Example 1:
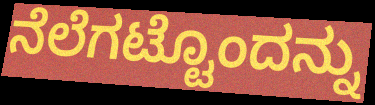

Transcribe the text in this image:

ನೆಲೆಗಟ್ಟೊಂದನ್ನು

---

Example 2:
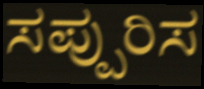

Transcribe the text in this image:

ಸಪ್ಪುರಿಸ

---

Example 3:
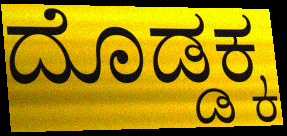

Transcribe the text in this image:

ದೊಡ್ಡಕ್ಕ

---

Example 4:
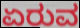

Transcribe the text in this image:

ಏರುವ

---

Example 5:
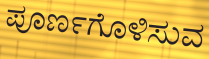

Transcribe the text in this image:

ಪೂರ್ಣಗೊಳಿಸುವ